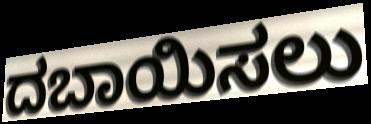
ದಬಾಯಿಸಲು